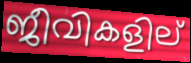
ജീവികളില്